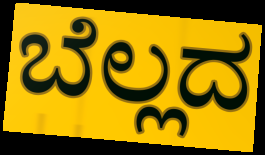
ಬೆಲ್ಲದ